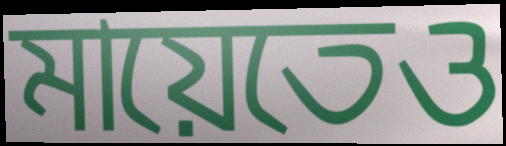
মায়েতেও